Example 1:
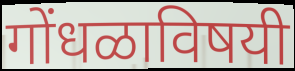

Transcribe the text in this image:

गोंधळाविषयी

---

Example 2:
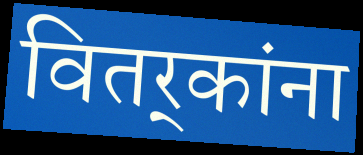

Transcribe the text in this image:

वितर्कांना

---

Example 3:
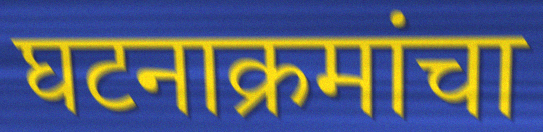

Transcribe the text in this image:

घटनाक्रमांचा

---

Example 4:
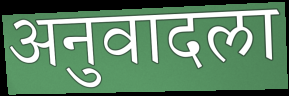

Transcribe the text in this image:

अनुवादला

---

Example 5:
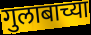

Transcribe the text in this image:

गुलाबाच्या